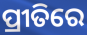
ପ୍ରୀତିରେ